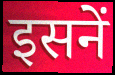
इसनें